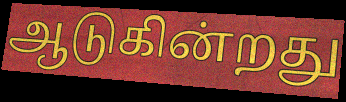
ஆடுகின்றது